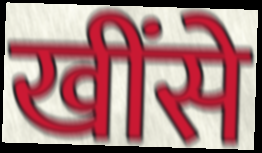
खींसे